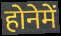
होनेमें